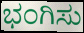
ಭಂಗಿಸು